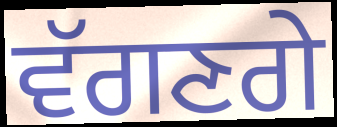
ਵੱਗਣਗੇ